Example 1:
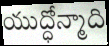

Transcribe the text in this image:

యుద్ధోన్మాది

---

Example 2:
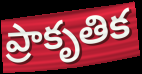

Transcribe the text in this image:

ప్రాకృతిక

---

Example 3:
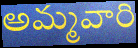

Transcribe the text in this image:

అమ్మవారి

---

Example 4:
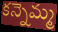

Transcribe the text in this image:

కన్నెమ్మ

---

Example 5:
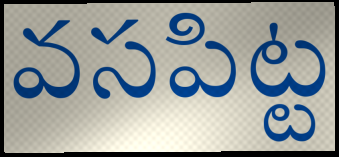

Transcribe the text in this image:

వసపిట్ట